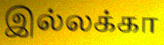
இல்லக்கா